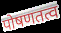
पोषणतत्व